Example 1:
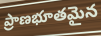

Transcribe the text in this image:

ప్రాణభూతమైన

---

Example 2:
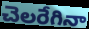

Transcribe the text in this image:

చెలరేగినా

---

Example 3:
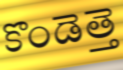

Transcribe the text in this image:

కొండెత్తె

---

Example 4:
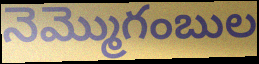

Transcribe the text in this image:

నెమ్మొగంబుల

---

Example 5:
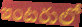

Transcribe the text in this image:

ఇంటరులో